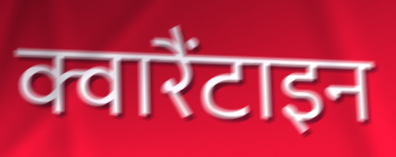
क्वारैंटाइन